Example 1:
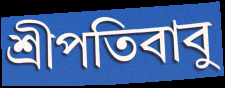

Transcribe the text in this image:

শ্রীপতিবাবু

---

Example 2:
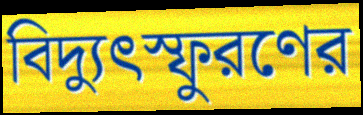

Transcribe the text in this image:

বিদ্যুৎস্ফুরণের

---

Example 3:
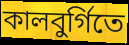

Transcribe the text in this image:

কালবুর্গিতে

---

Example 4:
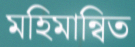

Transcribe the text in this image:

মহিমান্বিত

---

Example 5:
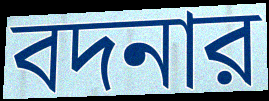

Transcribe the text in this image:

বদনার